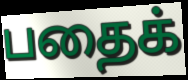
பதைக்